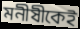
মনীষীকেই